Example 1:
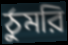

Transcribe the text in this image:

ঠুমরি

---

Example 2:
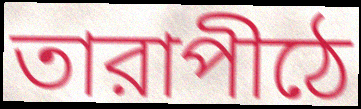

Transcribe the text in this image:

তারাপীঠে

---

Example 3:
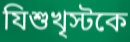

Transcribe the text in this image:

যিশুখৃস্টকে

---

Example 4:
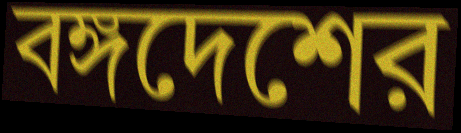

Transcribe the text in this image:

বঙ্গদেশের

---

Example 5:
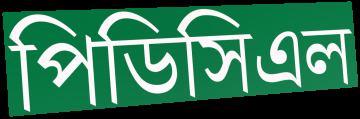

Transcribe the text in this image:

পিডিসিএল